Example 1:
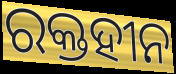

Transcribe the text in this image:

ରକ୍ତହୀନ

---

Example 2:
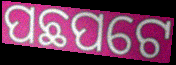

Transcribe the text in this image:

ପଛପଟେ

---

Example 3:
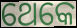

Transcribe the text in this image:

ଥେକେ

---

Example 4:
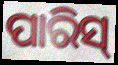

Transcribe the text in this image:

ପାରିସ୍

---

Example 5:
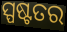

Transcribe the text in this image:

ସ୍ପଷ୍ଟତର